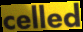
celled